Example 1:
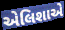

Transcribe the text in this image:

એલિશાએ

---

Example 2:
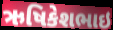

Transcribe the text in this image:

ઋષિકેશભાઇ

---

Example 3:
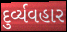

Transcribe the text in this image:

દુર્વ્યવહાર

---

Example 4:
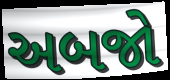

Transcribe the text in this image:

અબજો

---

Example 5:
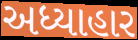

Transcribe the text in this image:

અધ્યાહાર